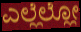
ಎಲ್ಲೆಲ್ಲೋ